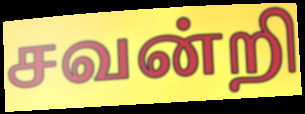
சவன்றி